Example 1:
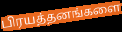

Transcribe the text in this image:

பிரயத்தனங்களை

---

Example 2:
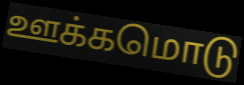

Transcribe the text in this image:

ஊக்கமொடு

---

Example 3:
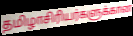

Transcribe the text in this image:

தமிழாசிரியர்களுக்கான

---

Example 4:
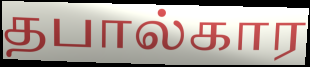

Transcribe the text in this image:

தபால்கார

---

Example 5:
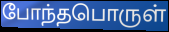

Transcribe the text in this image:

போந்தபொருள்